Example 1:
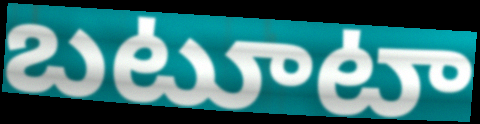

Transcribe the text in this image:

బటూటా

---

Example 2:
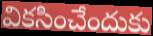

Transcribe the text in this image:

వికసించేందుకు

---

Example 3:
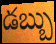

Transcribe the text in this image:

డబ్బు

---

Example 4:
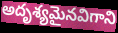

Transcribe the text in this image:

అదృశ్యమైనవిగాని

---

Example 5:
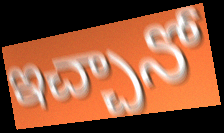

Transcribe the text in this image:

ఇచ్చానో